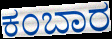
ಕಂಬಾರ